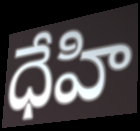
ధేహి